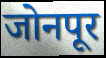
जोनपूर